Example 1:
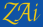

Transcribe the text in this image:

ZAi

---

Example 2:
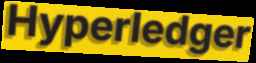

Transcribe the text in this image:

Hyperledger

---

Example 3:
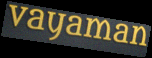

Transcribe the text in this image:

vayaman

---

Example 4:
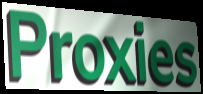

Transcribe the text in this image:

Proxies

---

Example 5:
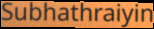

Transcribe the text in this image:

Subhathraiyin